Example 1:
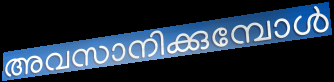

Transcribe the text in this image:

അവസാനിക്കുമ്പോൾ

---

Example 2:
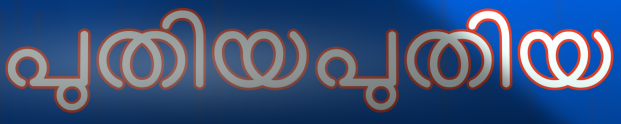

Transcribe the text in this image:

പുതിയപുതിയ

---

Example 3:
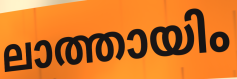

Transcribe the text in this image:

ലാത്തായിം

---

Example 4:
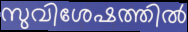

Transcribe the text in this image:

സുവിശേഷത്തിൽ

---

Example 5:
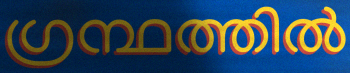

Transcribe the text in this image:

ഗ്രന്ഥത്തിൽ